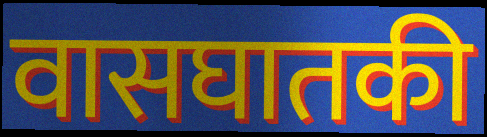
वासघातकी